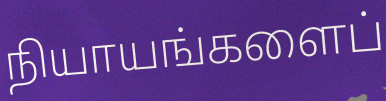
நியாயங்களைப்